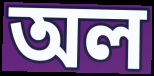
অল